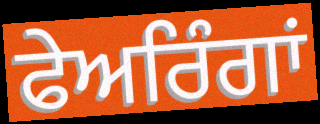
ਫੇਅਰਿੰਗਾਂ